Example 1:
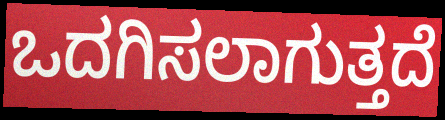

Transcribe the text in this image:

ಒದಗಿಸಲಾಗುತ್ತದೆ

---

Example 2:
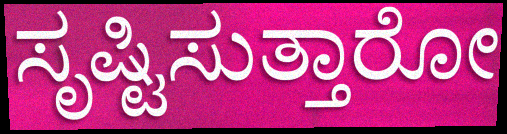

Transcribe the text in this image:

ಸೃಷ್ಟಿಸುತ್ತಾರೋ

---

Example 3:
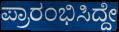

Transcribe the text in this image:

ಪ್ರಾರಂಭಿಸಿದ್ದೇ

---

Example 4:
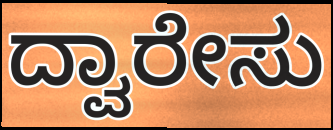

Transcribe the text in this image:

ದ್ವಾರೇಸು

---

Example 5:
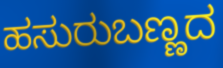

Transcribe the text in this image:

ಹಸುರುಬಣ್ಣದ